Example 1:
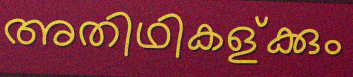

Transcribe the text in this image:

അതിഥികള്ക്കും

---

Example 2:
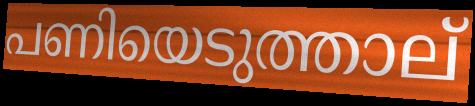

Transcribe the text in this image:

പണിയെടുത്താല്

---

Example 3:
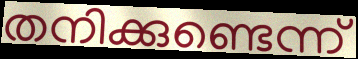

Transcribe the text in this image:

തനിക്കുണ്ടെന്ന്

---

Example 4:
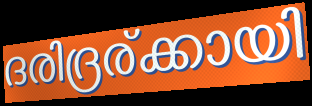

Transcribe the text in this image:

ദരിദ്രര്ക്കായി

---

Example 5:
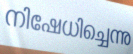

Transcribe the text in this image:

നിഷേധിച്ചെന്നു